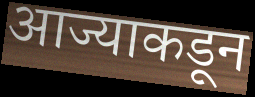
आज्याकडून